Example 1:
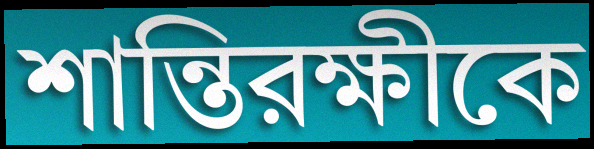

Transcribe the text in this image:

শান্তিরক্ষীকে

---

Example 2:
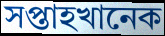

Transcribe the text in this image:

সপ্তাহখানেক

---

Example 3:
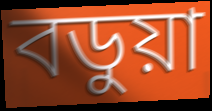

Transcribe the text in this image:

বডুয়া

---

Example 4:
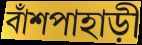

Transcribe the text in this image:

বাঁশপাহাড়ী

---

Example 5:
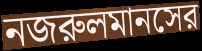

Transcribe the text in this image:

নজরুলমানসের